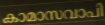
കാമാസവാപി